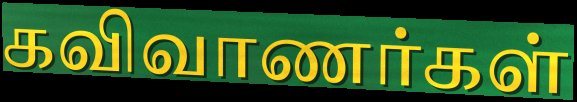
கவிவாணர்கள்